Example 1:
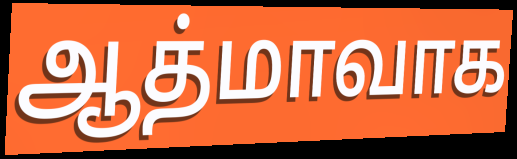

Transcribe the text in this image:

ஆத்மாவாக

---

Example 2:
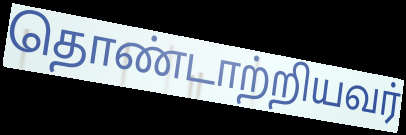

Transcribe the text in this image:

தொண்டாற்றியவர்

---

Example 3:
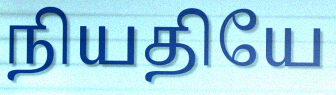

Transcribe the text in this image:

நியதியே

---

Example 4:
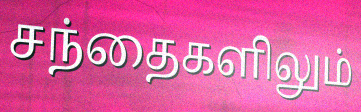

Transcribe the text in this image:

சந்தைகளிலும்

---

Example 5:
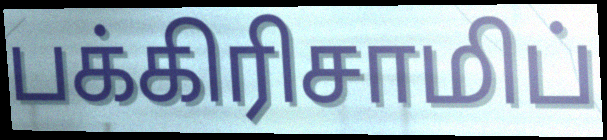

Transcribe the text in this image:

பக்கிரிசாமிப்